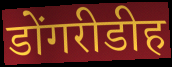
डोंगरीडीह